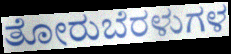
ತೋರುಬೆರಳುಗಳ